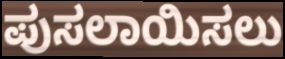
ಪುಸಲಾಯಿಸಲು